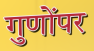
गुणोंपर